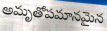
అమృతోపమానమైన